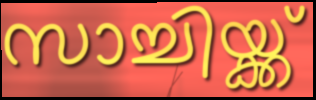
സാച്ചിയ്ക്ക്